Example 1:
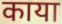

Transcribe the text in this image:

काया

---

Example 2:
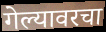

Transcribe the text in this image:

गेल्यावरचा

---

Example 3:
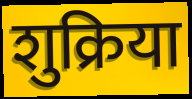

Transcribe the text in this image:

शुक्रिया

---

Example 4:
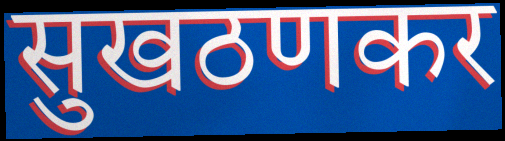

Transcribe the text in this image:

सुखठणकर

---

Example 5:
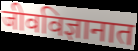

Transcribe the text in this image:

जीवविज्ञानात